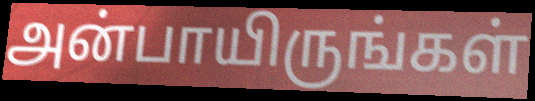
அன்பாயிருங்கள்